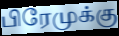
பிரேமுக்கு